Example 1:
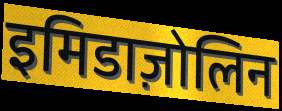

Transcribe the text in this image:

इमिडाज़ोलिन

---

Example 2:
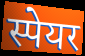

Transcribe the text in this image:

स्पेयर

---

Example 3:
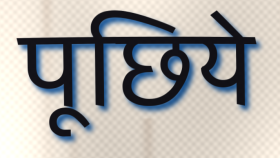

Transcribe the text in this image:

पूछिये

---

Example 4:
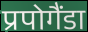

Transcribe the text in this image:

प्रपोगैंडा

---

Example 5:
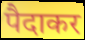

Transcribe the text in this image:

पैदाकर